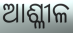
ଆଶ୍ଳୀଳ